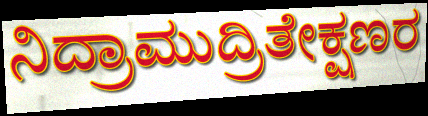
ನಿದ್ರಾಮುದ್ರಿತೇಕ್ಷಣರ